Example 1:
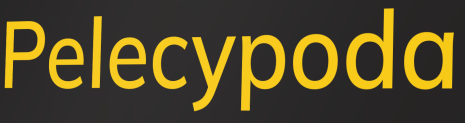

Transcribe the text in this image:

Pelecypoda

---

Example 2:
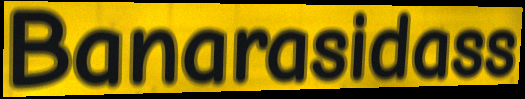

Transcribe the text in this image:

Banarasidass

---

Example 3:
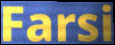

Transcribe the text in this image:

Farsi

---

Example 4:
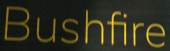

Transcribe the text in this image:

Bushfire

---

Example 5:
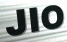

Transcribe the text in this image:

JIO